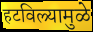
हटविल्यामुळे